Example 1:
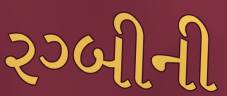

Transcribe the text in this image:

રગ્બીની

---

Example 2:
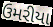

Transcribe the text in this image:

ઉમરીયા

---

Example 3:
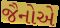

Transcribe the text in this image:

જૈનોએ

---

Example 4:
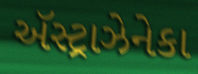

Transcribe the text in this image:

ઍસ્ટ્રાઝેનેકા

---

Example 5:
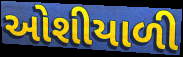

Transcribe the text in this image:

ઓશીયાળી